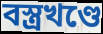
বস্ত্রখণ্ডে